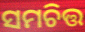
ସମଚିତ୍ତ